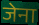
जेना